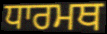
ਧਾਰਮਥ